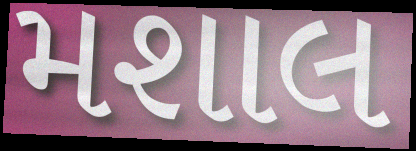
મશાલ